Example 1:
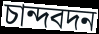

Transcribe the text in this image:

চান্দবদন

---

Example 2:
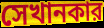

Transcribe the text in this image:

সেখানকার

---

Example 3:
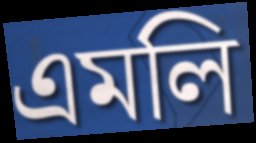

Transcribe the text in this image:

এমলি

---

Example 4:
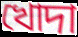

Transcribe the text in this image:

খোদা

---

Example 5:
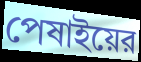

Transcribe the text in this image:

পেষাইয়ের